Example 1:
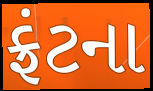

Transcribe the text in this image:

ફ્રંટના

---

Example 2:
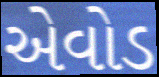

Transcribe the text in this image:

એવોડ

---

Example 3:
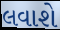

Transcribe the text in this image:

લવાશે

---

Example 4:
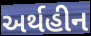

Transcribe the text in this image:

અર્થહીન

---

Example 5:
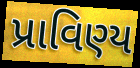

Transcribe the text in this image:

પ્રાવિણ્ય